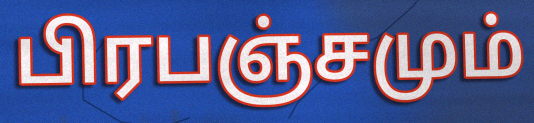
பிரபஞ்சமும்